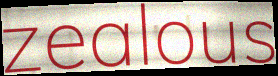
zealous